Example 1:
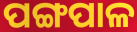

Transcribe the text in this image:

ପଙ୍ଗପାଳ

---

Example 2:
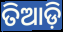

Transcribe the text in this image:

ତିଆଡ଼ି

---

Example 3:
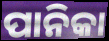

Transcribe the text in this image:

ପାନିକା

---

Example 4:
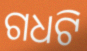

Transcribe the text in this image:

ଗଧଟି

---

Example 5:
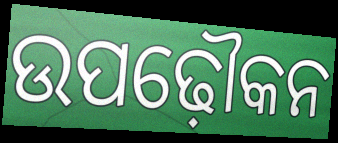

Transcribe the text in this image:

ଉପଢ଼ୌକନ